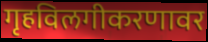
गृहविलगीकरणावर